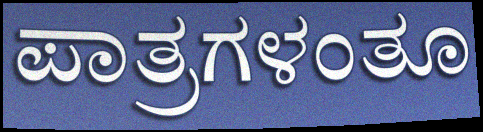
ಪಾತ್ರಗಳಂತೂ